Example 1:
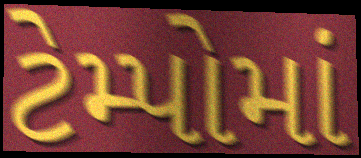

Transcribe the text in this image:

ટેમ્પોમાં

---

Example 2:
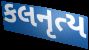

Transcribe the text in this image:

કલનૃત્ય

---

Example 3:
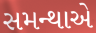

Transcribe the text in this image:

સમન્થાએ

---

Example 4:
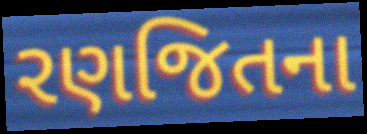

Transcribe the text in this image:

રણજિતના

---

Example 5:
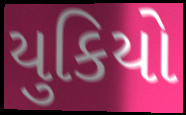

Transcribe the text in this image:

યુકિયો